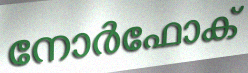
നോർഫോക്